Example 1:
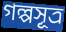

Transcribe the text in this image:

গল্পসূত্র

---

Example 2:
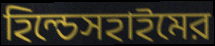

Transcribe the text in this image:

হিল্ডেসহাইমের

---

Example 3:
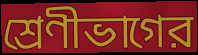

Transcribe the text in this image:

শ্রেণীভাগের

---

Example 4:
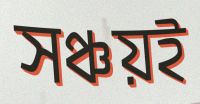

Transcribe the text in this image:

সঞ্চয়ই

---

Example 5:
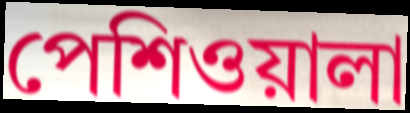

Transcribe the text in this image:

পেশিওয়ালা